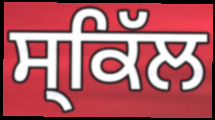
ਸ੍ਕਿੱਲ